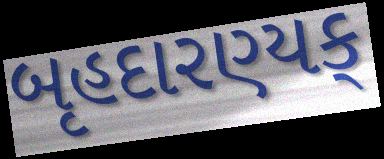
બૃહદારણ્યક્